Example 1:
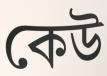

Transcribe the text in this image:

কেউ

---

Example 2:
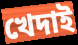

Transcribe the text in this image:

খেদাই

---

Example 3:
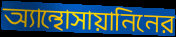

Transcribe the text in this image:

অ্যান্থোসায়ানিনের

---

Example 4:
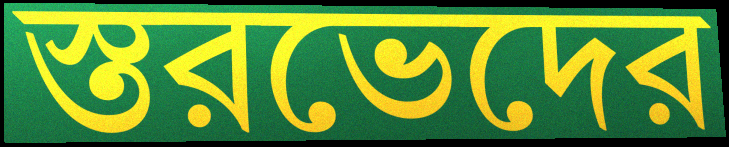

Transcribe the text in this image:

স্তরভেদের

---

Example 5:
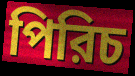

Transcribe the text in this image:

পিরিচ